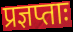
प्रज्ञप्ताः